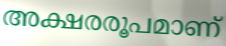
അക്ഷരരൂപമാണ്